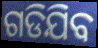
ଗଡିଯିବ